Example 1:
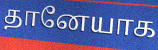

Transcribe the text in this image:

தானேயாக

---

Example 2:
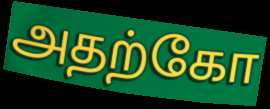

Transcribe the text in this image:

அதற்கோ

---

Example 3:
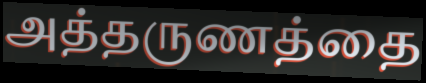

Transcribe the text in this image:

அத்தருணத்தை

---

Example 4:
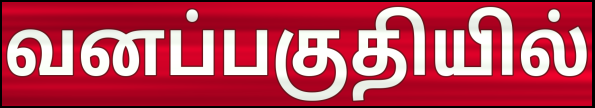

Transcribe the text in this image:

வனப்பகுதியில்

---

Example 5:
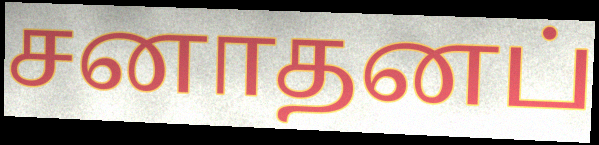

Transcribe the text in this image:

சனாதனப்